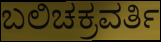
ಬಲಿಚಕ್ರವರ್ತಿ